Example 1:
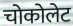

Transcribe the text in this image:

चोकोलेट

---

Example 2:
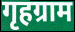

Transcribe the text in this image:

गृहग्राम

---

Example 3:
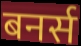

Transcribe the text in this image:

बनर्स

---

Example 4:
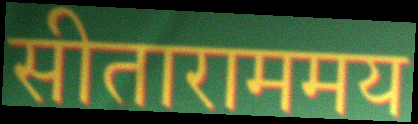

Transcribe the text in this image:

सीताराममय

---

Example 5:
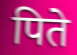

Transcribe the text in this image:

पिते